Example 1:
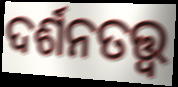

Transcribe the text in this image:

ଦର୍ଶନତତ୍ତ୍ଵ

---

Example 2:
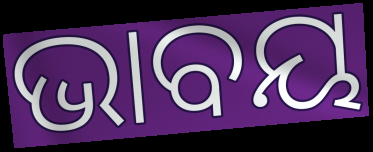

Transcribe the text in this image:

ଭାବୟ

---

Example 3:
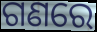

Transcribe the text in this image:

ଗଣରେ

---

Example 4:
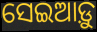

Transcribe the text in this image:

ସେଇଆଡ଼ୁ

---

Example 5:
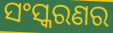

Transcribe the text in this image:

ସଂସ୍କରଣର